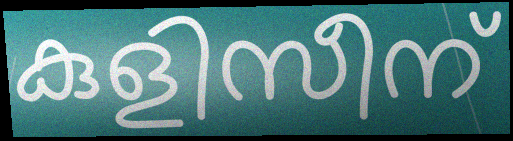
കുളിസീന്